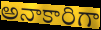
అనాకారిగా